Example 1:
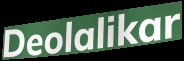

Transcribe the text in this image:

Deolalikar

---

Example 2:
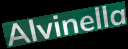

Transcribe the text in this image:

Alvinella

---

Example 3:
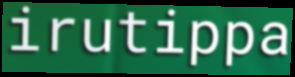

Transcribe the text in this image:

irutippa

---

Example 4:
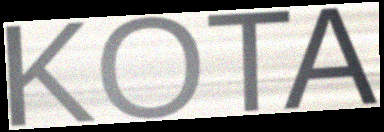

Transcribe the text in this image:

KOTA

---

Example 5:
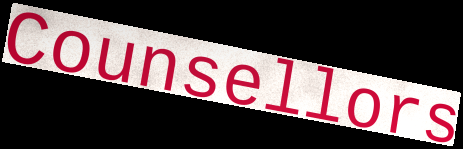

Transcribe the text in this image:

Counsellors